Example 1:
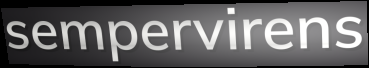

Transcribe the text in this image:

sempervirens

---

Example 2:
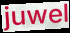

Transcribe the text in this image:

juwel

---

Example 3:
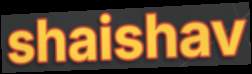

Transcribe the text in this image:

shaishav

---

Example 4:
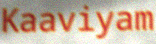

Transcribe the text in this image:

Kaaviyam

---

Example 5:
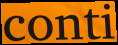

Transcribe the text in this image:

conti